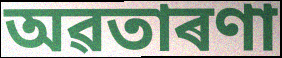
অৱতাৰণা